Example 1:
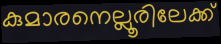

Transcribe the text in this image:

കുമാരനെല്ലൂരിലേക്ക്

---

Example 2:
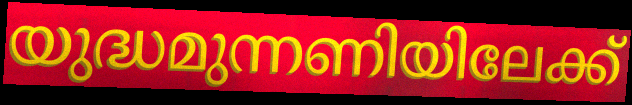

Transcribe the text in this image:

യുദ്ധമുന്നണിയിലേക്ക്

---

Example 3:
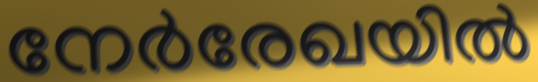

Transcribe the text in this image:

നേർരേഖയിൽ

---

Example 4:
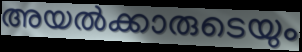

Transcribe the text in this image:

അയൽക്കാരുടെയും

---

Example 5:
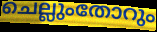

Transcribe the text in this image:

ചെല്ലുംതോറും